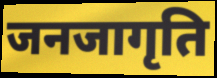
जनजागृति